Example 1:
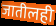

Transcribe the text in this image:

जातीलही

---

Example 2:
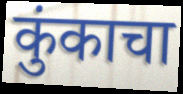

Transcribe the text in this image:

कुंकाचा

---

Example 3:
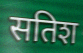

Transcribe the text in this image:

सतिश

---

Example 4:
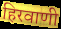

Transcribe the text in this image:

हिरवाणी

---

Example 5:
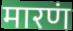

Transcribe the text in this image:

मारणं